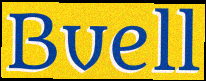
Buell